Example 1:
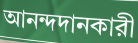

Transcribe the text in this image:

আনন্দদানকারী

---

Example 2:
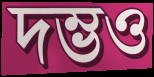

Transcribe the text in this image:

দম্ভও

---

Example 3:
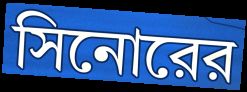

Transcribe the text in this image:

সিনোরের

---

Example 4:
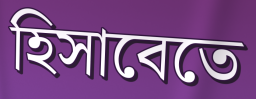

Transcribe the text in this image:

হিসাবেতে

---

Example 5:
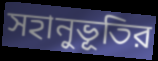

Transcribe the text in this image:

সহানুভূতির